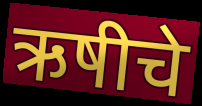
ऋषीचे